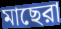
মাছেরা